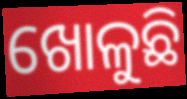
ଖୋଳୁଛି